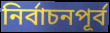
নির্বাচনপূর্ব